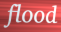
flood